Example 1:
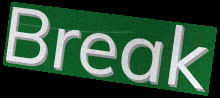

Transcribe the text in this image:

Break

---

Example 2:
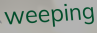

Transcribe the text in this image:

weeping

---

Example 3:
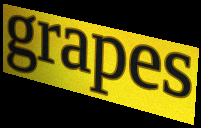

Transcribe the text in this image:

grapes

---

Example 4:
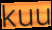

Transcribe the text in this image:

kuu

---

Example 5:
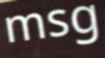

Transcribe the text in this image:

msg